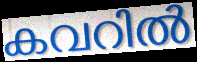
കവറിൽ